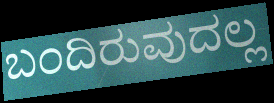
ಬಂದಿರುವುದಲ್ಲ